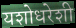
यशोधरेशी